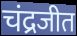
चंद्रजीत